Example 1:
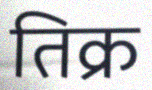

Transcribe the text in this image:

तिक्र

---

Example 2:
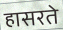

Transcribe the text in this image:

हासरते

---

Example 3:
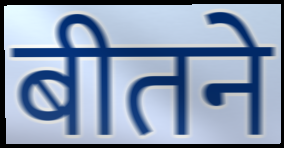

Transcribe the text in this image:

बीतने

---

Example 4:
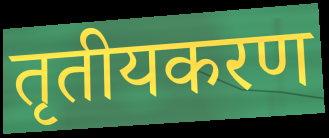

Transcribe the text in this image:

तृतीयकरण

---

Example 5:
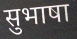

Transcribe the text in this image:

सुभाषा